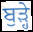
ਬੁੜ੍ਹੇ